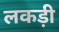
लकड़ी